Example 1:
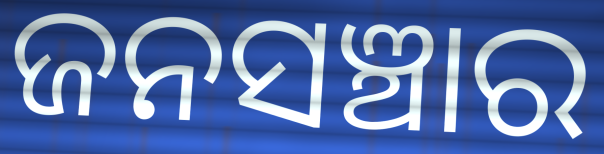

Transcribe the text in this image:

ଜନସଞ୍ଚାର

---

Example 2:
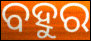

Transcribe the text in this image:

ବହୁର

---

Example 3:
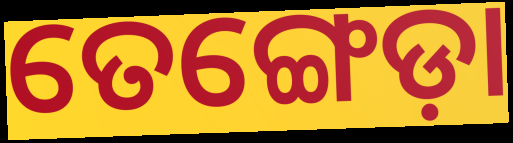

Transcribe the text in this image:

ତେଙ୍ଗେଡ଼ା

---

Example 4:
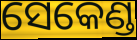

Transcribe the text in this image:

ସେକେଣ୍ଡ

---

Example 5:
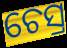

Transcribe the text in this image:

ଚେସ୍ର